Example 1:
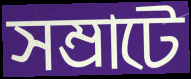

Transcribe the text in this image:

সম্ৰাটে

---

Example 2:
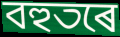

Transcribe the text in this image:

বহুতৰে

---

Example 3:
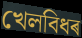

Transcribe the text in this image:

খেলবিধৰ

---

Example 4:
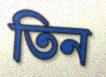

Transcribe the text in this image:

তিন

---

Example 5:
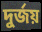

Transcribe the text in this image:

দুৰ্জয়